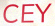
CEY